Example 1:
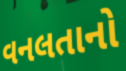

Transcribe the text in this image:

વનલતાનો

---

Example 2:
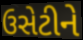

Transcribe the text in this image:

ઉસેટીને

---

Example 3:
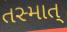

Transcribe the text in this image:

તસ્માત્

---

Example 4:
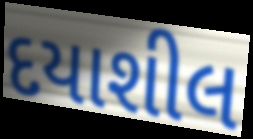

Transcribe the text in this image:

દયાશીલ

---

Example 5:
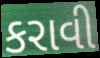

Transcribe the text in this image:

કરાવી